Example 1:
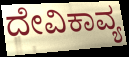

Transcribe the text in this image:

ದೇವಿಕಾವ್ಯ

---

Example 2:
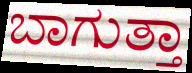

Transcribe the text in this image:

ಬಾಗುತ್ತಾ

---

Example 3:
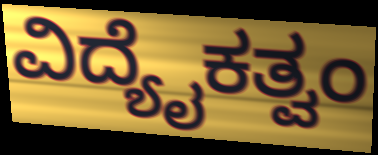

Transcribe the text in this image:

ವಿದ್ಯೈಕತ್ವಂ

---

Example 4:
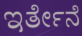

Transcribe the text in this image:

ಇರ್ತೇನೆ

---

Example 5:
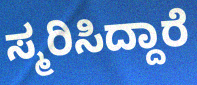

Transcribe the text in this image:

ಸ್ಮರಿಸಿದ್ದಾರೆ